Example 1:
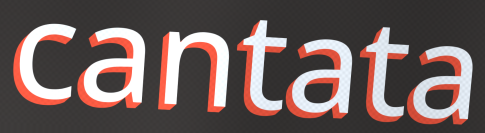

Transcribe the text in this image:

cantata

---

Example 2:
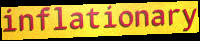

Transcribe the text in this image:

inflationary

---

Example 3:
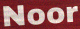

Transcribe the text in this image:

Noor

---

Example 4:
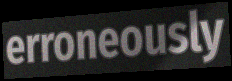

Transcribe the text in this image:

erroneously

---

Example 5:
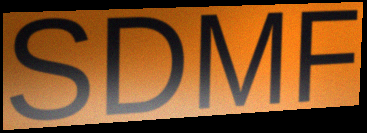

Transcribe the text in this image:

SDMF